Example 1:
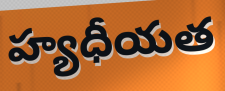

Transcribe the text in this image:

హ్యధీయత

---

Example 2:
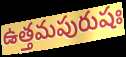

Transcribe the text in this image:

ఉత్తమపురుషః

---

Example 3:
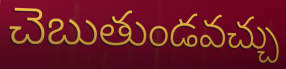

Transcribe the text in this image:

చెబుతుండవచ్చు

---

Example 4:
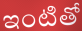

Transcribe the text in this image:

ఇంటితో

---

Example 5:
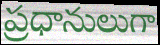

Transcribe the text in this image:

ప్రధానులుగా